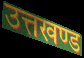
उत्तखण्ड